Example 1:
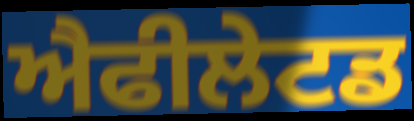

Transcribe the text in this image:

ਐਫੀਲੇਟਡ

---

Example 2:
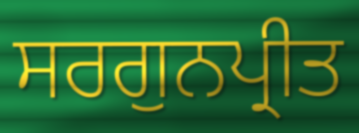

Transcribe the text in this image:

ਸਰਗੁਨਪ੍ਰੀਤ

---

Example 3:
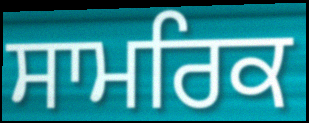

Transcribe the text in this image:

ਸਾਮਰਿਕ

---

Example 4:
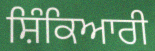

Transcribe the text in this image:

ਸ਼ਿੰਕਿਆਰੀ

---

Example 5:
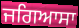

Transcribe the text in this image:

ਜਗਿਆਸਾ